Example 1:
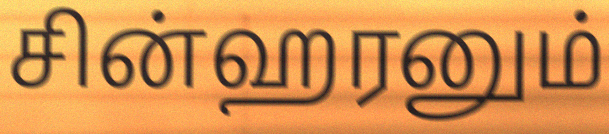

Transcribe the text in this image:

சின்ஹரனும்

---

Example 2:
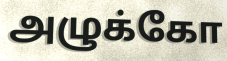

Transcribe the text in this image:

அழுக்கோ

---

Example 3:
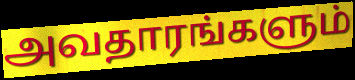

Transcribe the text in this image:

அவதாரங்களும்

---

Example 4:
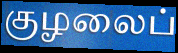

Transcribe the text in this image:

குழலைப்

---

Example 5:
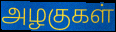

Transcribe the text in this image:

அழகுகள்